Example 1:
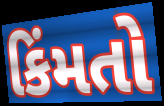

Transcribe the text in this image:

કિંમતો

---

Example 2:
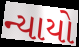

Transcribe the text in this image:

ન્યાયો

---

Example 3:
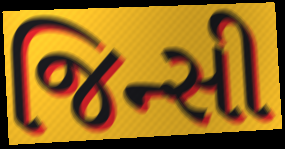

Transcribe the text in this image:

જિન્સી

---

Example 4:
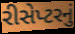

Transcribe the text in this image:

રીસેપ્ટરનું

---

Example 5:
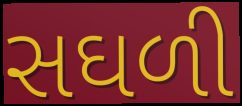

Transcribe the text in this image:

સઘળી